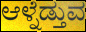
ಆಳ್ನೆಡ್ತುವ